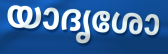
യാദൃശോ